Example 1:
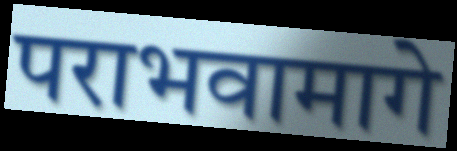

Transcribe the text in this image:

पराभवामागे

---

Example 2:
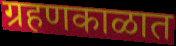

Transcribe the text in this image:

ग्रहणकाळात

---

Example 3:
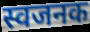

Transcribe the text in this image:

स्वजनक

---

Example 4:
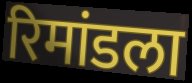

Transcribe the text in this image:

रिमांडला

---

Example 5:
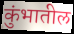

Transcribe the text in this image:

कुंभातील